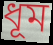
ধূম